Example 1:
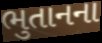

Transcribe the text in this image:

ભુતાનના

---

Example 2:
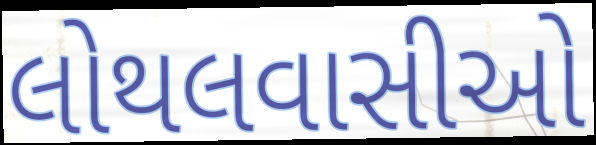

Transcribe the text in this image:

લોથલવાસીઓ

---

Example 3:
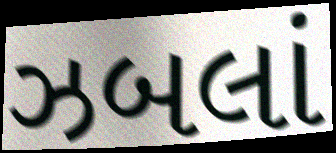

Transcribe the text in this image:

ઝબલાં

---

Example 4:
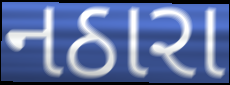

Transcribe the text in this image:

નઠારા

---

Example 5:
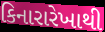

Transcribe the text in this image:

કિનારારેખાથી